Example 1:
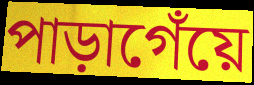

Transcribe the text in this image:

পাড়াগেঁয়ে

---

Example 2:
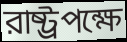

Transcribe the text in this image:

রাষ্ট্রপক্ষে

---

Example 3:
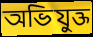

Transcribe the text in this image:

অভিযুক্ত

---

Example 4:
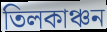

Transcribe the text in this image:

তিলকাঞ্চন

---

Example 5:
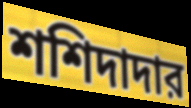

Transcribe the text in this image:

শশিদাদার